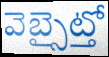
వెబ్సైట్తో